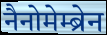
नैनोमेम्ब्रेन